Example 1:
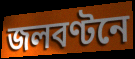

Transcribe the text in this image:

জলবণ্টনে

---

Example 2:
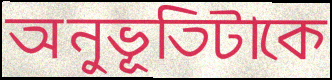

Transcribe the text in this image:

অনুভূতিটাকে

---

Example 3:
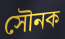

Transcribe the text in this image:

সৌনক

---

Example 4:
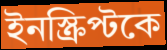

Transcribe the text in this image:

ইনস্ক্রিপ্টকে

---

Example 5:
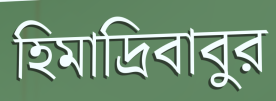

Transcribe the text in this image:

হিমাদ্রিবাবুর